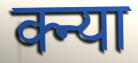
क्न्या